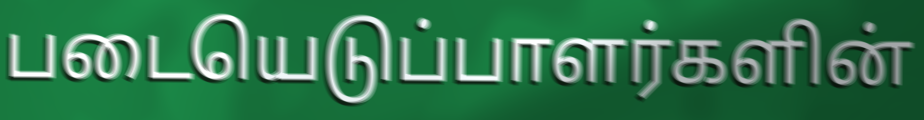
படையெடுப்பாளர்களின்